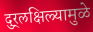
दुर्लक्षिल्यामुळे